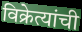
विक्रेत्यांची